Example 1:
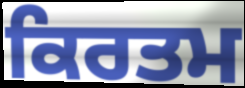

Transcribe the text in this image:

ਕਿਰਤਮ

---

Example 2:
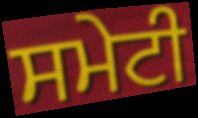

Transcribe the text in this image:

ਸਮੇਟੀ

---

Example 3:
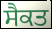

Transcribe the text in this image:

ਸੈਕਤ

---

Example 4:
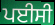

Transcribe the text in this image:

ਪਈਸੀ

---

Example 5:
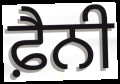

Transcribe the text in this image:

ਫ਼ੈਨੀ